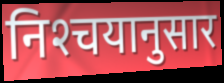
निश्चयानुसार